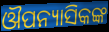
ଔପନ୍ୟାସିକଙ୍କ